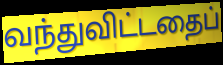
வந்துவிட்டதைப்